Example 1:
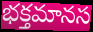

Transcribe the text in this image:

భక్తమానస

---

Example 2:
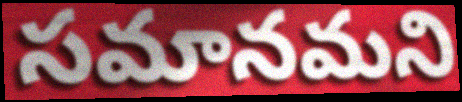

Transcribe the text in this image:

సమానమని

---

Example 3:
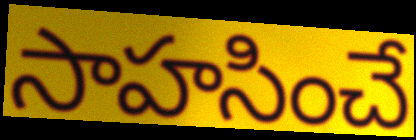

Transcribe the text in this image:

సాహసించే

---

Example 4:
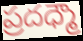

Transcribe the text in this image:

ప్రదధ్మౌ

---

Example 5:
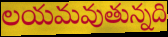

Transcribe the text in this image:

లయమవుతున్నది